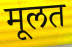
मूलत